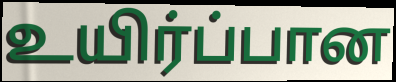
உயிர்ப்பான